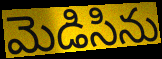
మెడిసిను